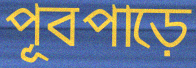
পূবপাড়ে